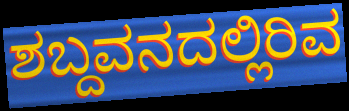
ಶಬ್ದವನದಲ್ಲಿರಿವ